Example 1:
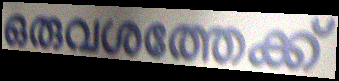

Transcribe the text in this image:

ഒരുവശത്തേക്ക്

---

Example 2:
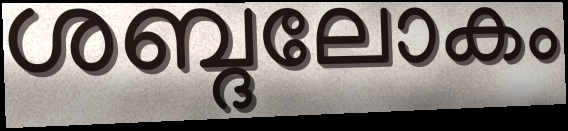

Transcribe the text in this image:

ശബ്ദലോകം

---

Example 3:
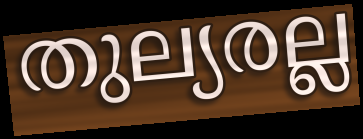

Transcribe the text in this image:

തുല്യരല്ല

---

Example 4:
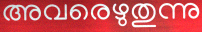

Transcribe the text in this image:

അവരെഴുതുന്നു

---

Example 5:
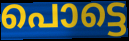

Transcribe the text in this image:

പൊട്ടെ